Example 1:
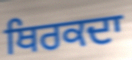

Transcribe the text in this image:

ਥਿਰਕਦਾ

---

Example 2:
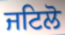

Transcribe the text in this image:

ਜਟਿਲੋ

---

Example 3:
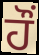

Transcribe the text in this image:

ਹੌਂ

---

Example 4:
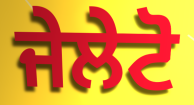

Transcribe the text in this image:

ਜੇਲੇਟੋ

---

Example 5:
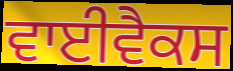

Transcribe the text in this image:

ਵਾਈਵੈਕਸ